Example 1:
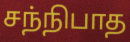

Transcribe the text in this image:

சந்நிபாத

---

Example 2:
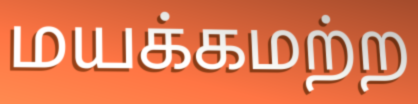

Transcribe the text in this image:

மயக்கமற்ற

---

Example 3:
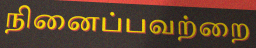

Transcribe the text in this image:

நினைப்பவற்றை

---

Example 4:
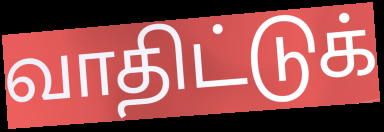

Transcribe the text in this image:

வாதிட்டுக்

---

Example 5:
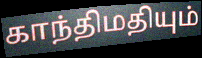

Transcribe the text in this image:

காந்திமதியும்